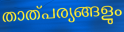
താത്പര്യങ്ങളും